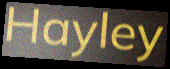
Hayley